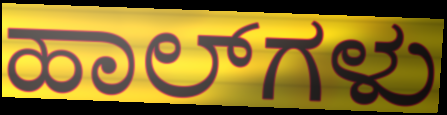
ಹಾಲ್‌ಗಳು